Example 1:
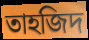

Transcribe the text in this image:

তাহজিদ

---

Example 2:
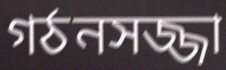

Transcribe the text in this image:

গঠনসজ্জা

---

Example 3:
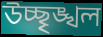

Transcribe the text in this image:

উচ্ছৃঙ্খল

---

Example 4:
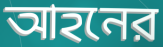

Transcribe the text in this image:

আহনের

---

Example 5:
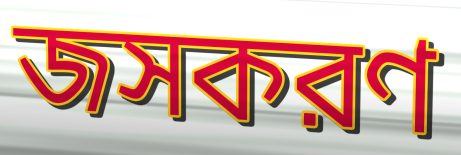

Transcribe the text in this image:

জসকরণ